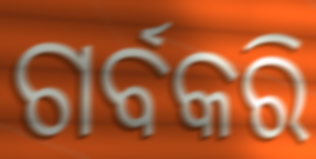
ଗର୍ବକରି